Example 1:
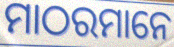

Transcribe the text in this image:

ମାଠରମାନେ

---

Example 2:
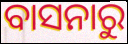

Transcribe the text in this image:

ବାସନାରୁ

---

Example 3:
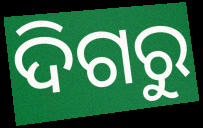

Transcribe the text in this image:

ଦିଗରୁ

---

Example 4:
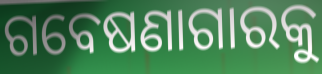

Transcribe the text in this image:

ଗବେଷଣାଗାରକୁ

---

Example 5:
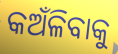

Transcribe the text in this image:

କଅଁଳିବାକୁ